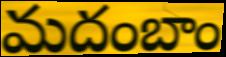
మదంబాం